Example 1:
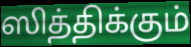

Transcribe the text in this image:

ஸித்திக்கும்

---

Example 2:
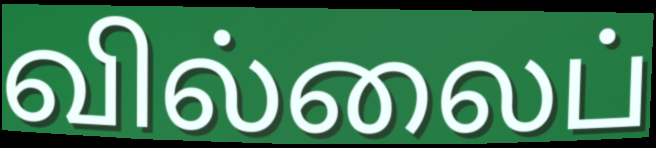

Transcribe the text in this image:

வில்லைப்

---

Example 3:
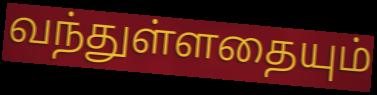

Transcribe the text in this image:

வந்துள்ளதையும்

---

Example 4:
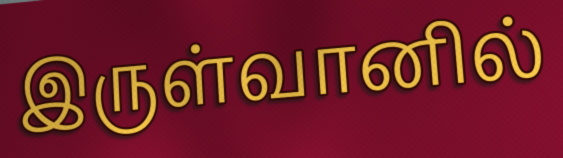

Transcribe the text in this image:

இருள்வானில்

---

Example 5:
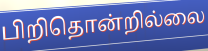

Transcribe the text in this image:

பிறிதொன்றில்லை